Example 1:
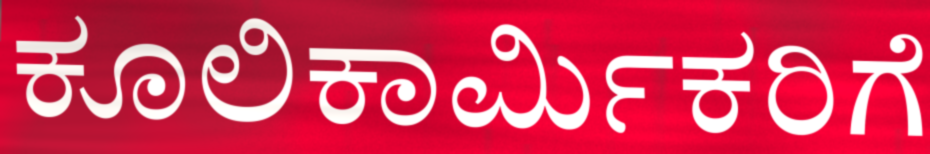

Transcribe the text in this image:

ಕೂಲಿಕಾರ್ಮಿಕರಿಗೆ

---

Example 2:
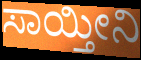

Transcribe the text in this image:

ಸಾಯ್ತೀನಿ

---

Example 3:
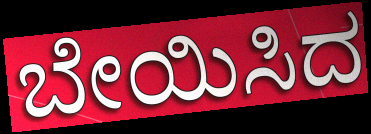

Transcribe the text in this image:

ಬೇಯಿಸಿದ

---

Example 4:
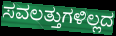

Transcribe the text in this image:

ಸವಲತ್ತುಗಳಿಲ್ಲದ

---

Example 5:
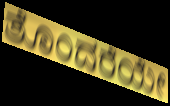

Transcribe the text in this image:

ತೊಂದರೆಯೇ